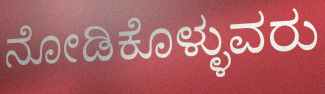
ನೋಡಿಕೊಳ್ಳುವರು